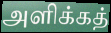
அளிக்கத்